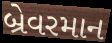
બ્રેવરમાન